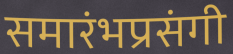
समारंभप्रसंगी